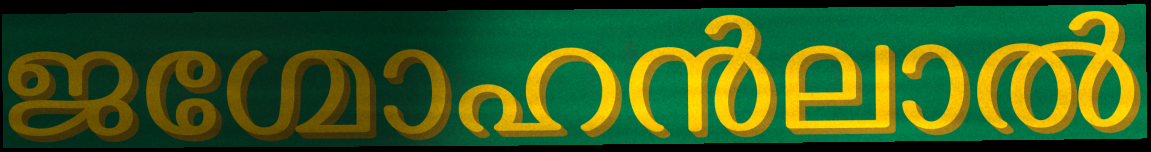
ജഗ്മോഹൻലാൽ